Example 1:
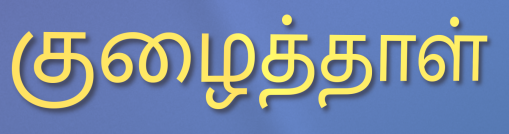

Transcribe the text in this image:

குழைத்தாள்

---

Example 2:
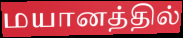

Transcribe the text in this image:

மயானத்தில்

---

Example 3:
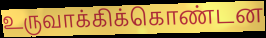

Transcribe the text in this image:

உருவாக்கிக்கொண்டன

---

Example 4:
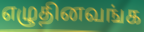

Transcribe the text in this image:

எழுதினவங்க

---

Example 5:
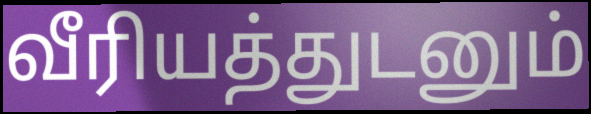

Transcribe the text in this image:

வீரியத்துடனும்